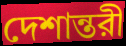
দেশান্তরী